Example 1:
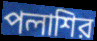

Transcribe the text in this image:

পলাশির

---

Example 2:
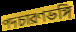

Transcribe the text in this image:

পদচারণভঙ্গি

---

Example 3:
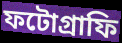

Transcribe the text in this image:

ফটোগ্রাফি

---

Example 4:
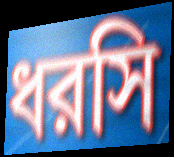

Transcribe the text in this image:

ধরসি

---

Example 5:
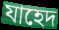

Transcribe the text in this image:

যাহেদ